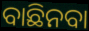
ବାଛିନବା